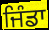
ਜਿੰਡਾ